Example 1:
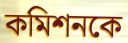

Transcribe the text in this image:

কমিশনকে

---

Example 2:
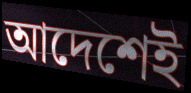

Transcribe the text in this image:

আদেশেই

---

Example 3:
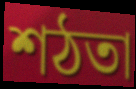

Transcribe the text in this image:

শঠতা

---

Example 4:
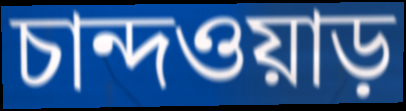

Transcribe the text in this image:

চান্দওয়াড়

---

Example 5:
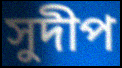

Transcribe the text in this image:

সুদীপ